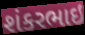
શંકરભાઇ